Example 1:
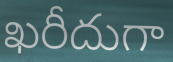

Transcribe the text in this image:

ఖరీదుగా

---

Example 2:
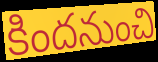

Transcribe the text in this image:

కిందనుంచి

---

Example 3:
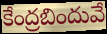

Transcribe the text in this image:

కేంద్రబిందువే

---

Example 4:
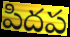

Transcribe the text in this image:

పిదప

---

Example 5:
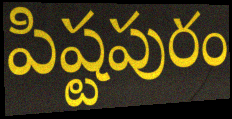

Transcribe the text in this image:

పిష్టపురం